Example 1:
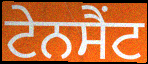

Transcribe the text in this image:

ਟੇਨਸੈਂਟ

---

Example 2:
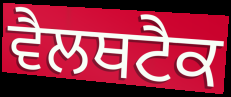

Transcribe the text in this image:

ਵੈਲਥਟੈਕ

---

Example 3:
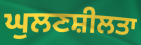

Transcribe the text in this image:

ਘੁਲਣਸ਼ੀਲਤਾ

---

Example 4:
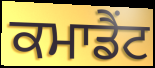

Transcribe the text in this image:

ਕਮਾਡੈਂਟ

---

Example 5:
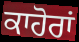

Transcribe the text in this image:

ਕਾਹੋਰਾਂ